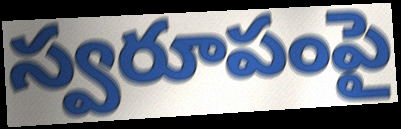
స్వరూపంపై